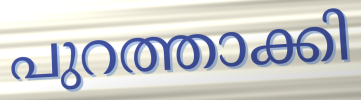
പുറത്താക്കി